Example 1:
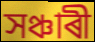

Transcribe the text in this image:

সঞ্চাৰী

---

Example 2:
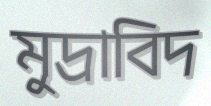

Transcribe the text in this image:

মুদ্ৰাবিদ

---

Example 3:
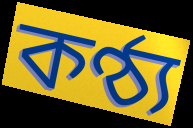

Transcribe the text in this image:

কণ্ঠ্য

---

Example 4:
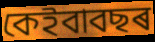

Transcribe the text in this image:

কেইবাবছৰ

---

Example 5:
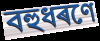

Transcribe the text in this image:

বহুধৰণে